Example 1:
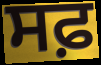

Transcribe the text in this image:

ਸਫ਼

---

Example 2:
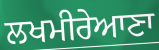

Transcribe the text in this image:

ਲਖਮੀਰੇਆਣਾ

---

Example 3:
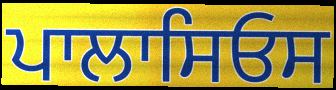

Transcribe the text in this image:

ਪਾਲਾਸਿਓਸ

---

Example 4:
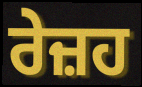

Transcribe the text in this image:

ਰੇਜ਼ਹ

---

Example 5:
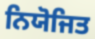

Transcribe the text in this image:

ਨਿਯੋਜਿਤ